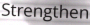
Strengthen